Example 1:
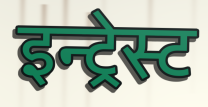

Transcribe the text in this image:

इन्ट्रेस्ट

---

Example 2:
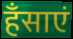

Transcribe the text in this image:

हँसाएं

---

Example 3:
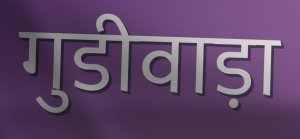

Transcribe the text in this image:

गुडीवाड़ा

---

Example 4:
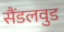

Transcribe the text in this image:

सैंडलवुड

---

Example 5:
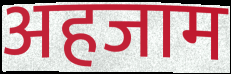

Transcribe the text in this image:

अहजाम